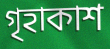
গৃহাকাশ